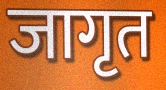
जागृत